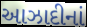
આઝાદીનાં